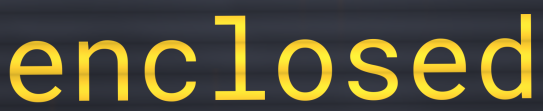
enclosed